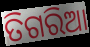
ତିଗରିଆ